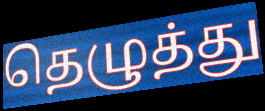
தெழுத்து